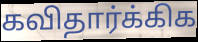
கவிதார்க்கிக